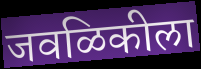
जवळिकीला